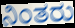
ನಿಂತರು